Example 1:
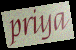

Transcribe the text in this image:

priya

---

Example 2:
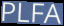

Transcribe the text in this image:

PLFA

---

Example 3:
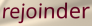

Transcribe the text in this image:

rejoinder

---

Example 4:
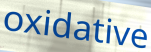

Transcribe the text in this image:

oxidative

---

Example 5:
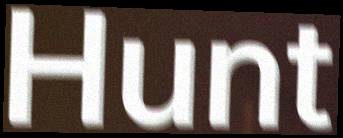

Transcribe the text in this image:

Hunt